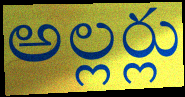
అల్లర్లు